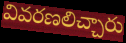
వివరణలిచ్చారు